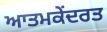
ਆਤਮਕੇਂਦਰਤ